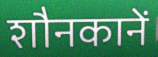
शौनकानें